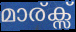
മാര്ക്സ്